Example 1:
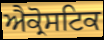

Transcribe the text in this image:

ਐਕ੍ਰੋਸਟਿਕ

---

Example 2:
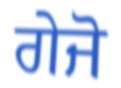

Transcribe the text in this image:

ਗੇਜੋ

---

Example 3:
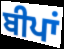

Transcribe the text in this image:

ਬੀਪਾਂ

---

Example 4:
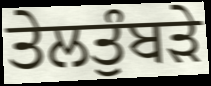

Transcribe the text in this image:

ਤੇਲਤੁੰਬੜੇ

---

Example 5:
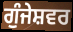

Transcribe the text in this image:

ਗੁੰਜੇਸ਼ਵਰ